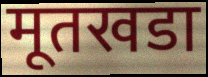
मूतखडा